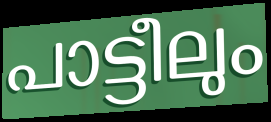
പാട്ടീലും